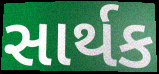
સાર્થક